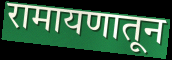
रामायणातून